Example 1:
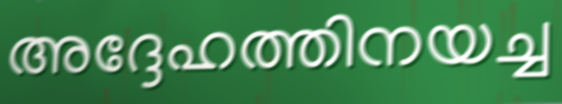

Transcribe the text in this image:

അദ്ദേഹത്തിനയച്ച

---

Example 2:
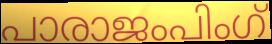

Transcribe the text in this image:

പാരാജംപിംഗ്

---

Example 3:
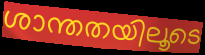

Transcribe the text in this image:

ശാന്തതയിലൂടെ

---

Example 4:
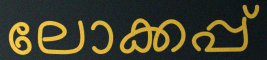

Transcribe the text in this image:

ലോക്കപ്പ്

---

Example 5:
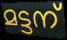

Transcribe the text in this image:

മട്ടന്